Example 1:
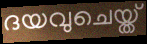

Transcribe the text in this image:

ദയവുചെയ്ത്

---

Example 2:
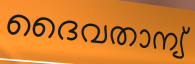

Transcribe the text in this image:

ദൈവതാന്യ്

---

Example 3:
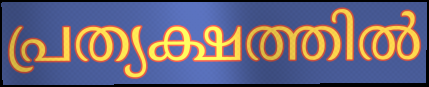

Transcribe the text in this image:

പ്രത്യക്ഷത്തിൽ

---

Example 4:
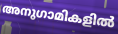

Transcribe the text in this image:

അനുഗാമികളിൽ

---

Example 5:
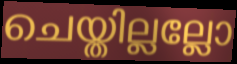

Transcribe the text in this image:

ചെയ്തില്ലല്ലോ